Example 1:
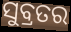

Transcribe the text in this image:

ସୁବ୍ରତର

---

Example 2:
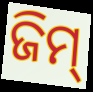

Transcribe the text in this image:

ଜିମ୍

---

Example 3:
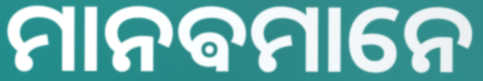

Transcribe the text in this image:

ମାନଵମାନେ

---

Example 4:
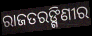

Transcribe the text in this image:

ରାଜତରଙ୍ଗିଣୀର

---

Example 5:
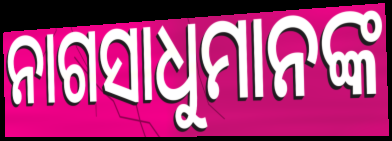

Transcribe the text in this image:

ନାଗସାଧୁମାନଙ୍କ